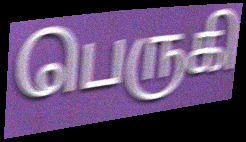
பெருகி